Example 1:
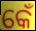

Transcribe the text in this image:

କେଁ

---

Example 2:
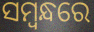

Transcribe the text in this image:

ସମ୍ବନ୍ଧରେ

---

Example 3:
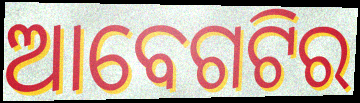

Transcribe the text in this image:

ଆବେଗଟିର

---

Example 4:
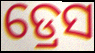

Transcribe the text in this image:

ଡ୍ରେସ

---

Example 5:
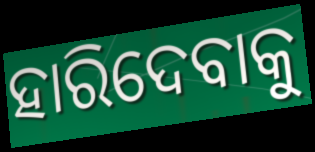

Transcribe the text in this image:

ହାରିଦେବାକୁ